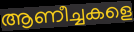
ആണീച്ചകളെ